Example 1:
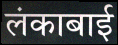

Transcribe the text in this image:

लंकाबाई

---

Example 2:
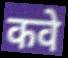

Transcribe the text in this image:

कवे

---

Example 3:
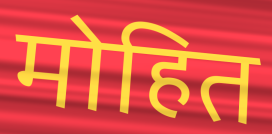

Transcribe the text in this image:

मोहित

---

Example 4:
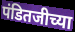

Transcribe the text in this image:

पंडितजीच्या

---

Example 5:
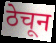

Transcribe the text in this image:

ठेचून